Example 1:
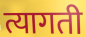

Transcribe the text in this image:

त्यागती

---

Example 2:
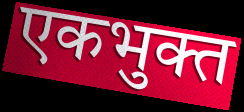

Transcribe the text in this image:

एकभुक्त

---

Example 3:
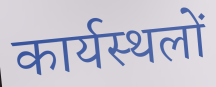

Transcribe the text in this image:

कार्यस्थलों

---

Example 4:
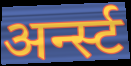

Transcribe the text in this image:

अर्न्स्ट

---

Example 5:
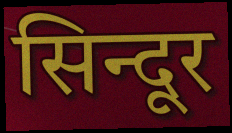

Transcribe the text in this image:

सिन्दूर